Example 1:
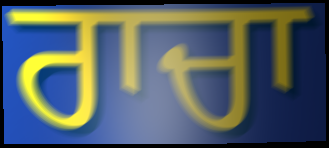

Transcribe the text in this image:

ਰਾਚਾ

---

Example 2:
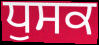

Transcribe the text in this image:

ਧੁਸਕ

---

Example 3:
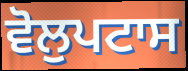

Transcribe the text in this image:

ਵੋਲੁਪਟਾਸ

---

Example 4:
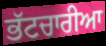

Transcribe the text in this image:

ਭੱਟਚਾਰੀਆ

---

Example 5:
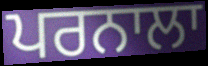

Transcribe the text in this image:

ਪਰਨਾਲਾ